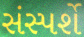
સંસ્પર્શે